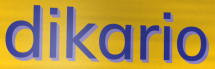
dikario